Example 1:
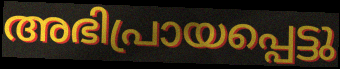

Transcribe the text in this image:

അഭിപ്രായപ്പെട്ടു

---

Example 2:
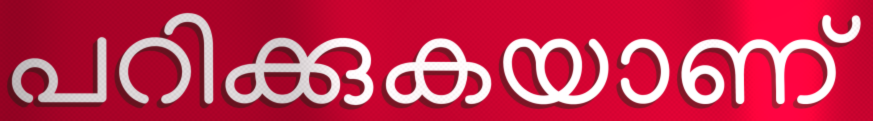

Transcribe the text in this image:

പറിക്കുകയാണ്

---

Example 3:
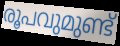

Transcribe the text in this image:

രൂപവുമുണ്ട്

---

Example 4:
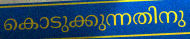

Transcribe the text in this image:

കൊടുക്കുന്നതിനു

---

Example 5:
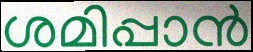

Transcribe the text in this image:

ശമിപ്പാൻ